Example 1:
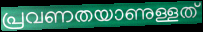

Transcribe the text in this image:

പ്രവണതയാണുള്ളത്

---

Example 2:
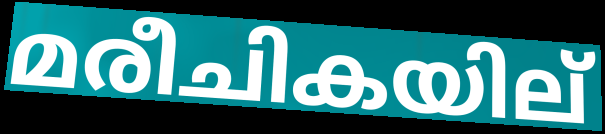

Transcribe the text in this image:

മരീചികയില്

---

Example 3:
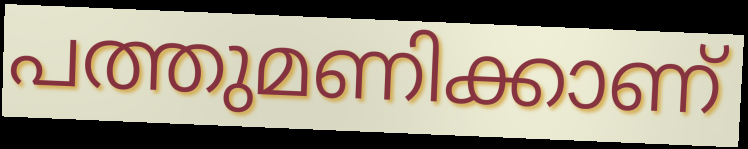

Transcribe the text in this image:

പത്തുമണിക്കാണ്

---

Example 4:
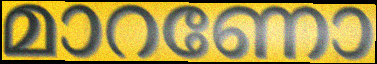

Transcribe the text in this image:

മാറണോ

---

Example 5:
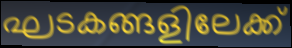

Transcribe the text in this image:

ഘടകങ്ങളിലേക്ക്